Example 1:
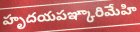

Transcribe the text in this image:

హృదయపఞ్కారిమేహి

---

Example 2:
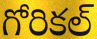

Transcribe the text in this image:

గోరికల్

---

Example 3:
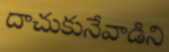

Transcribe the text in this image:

దాచుకునేవాడిని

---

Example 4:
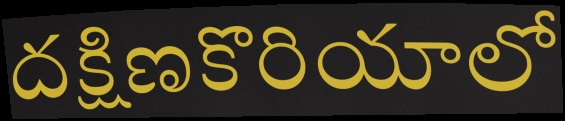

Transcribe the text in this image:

దక్షిణకొరియాలో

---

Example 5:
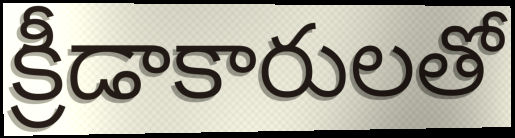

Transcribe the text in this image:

క్రీడాకారులతో